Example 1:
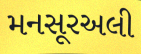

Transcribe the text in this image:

મનસૂરઅલી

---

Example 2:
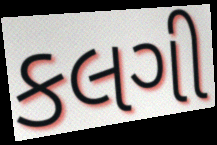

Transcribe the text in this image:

કલગી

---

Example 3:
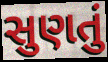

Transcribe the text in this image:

સુણતું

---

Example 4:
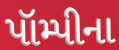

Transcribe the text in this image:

પૉમ્પીના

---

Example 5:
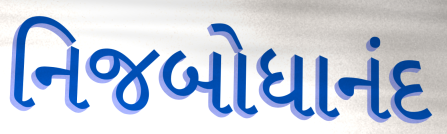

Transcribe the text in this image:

નિજબોધાનંદ